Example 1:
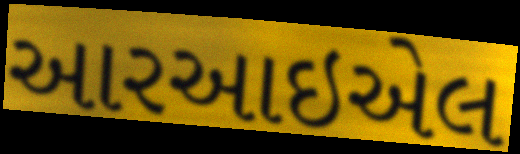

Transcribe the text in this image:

આરઆઇએલ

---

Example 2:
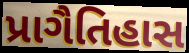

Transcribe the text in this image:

પ્રાગૈતિહાસ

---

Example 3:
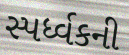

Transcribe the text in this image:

સ્પર્ધ્વકની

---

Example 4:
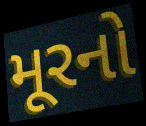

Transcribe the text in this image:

મૂરનો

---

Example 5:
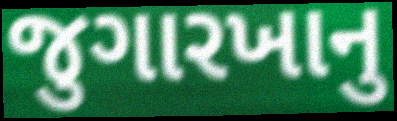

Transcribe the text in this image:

જુગારખાનુ